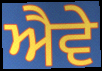
ਐਵੇ